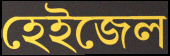
হেইজেল